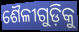
ଶୈଳୀଗୁଡ଼ିକୁ